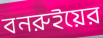
বনরুইয়ের